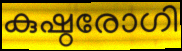
കുഷ്ഠരോഗി